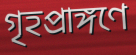
গৃহপ্রাঙ্গণে